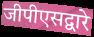
जीपीएसद्वारे